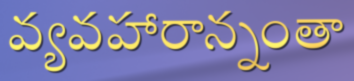
వ్యవహారాన్నంతా